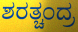
ಶರತ್ಚಂದ್ರ